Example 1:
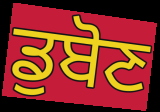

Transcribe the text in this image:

ਡੁਬੋਣ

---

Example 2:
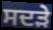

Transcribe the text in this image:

ਸਦੜੇ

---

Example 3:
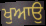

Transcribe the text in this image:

ਖੁਆਉ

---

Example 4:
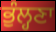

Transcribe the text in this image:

ਭੁੰਲ੍ਹਣਾ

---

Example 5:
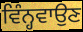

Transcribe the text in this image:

ਵਿੰਨ੍ਹਵਾਉਣ